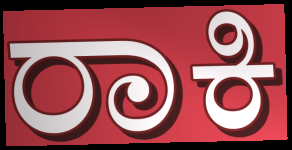
ರಾಕಿ